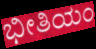
ಭೀತಿಯಂ